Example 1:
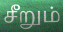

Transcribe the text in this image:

சீறும்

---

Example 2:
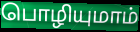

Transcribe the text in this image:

பொழியுமாம்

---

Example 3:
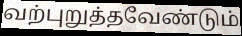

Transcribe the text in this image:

வற்புறுத்தவேண்டும்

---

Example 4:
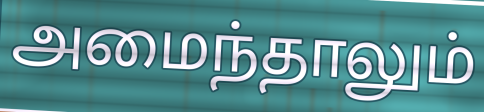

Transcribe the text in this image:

அமைந்தாலும்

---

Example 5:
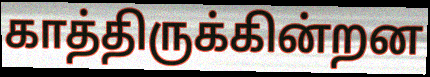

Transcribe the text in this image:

காத்திருக்கின்றன